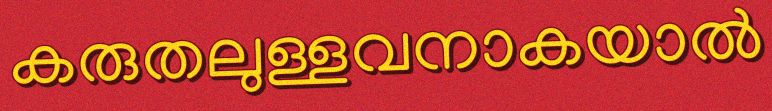
കരുതലുള്ളവനാകയാൽ